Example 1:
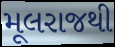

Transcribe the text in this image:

મૂલરાજથી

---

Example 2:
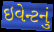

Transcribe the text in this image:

ઇવેન્ટનું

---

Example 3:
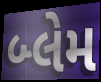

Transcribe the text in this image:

બ્લેમ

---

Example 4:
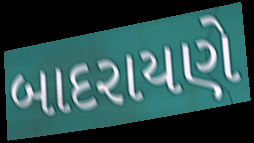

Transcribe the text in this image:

બાદરાયણે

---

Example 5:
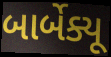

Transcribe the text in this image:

બાર્બેક્યૂ